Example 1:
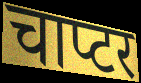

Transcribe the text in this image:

चाप्टर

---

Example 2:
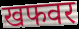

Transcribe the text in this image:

खफवर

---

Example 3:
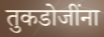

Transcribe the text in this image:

तुकडोजींना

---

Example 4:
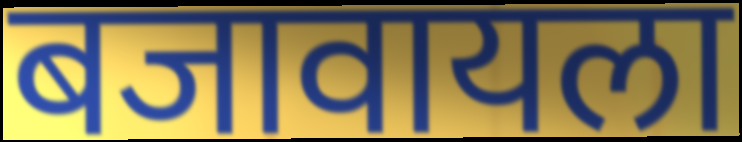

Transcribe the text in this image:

बजावायला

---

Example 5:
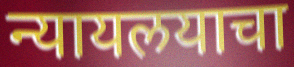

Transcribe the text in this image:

न्यायलयाचा